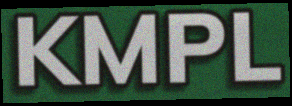
KMPL